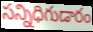
సన్నిధిగుడారం